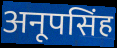
अनूपसिंह